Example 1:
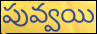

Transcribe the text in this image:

పువ్వయి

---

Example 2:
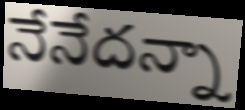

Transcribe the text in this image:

నేనేదన్నా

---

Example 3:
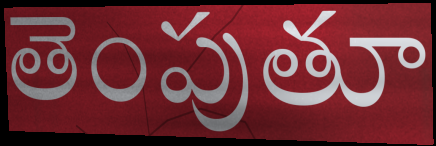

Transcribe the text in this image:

తెంపుతూ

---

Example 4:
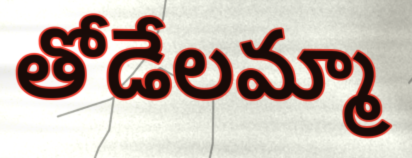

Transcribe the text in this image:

తోడేలమ్మా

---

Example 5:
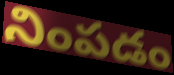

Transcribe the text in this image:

నింపడం